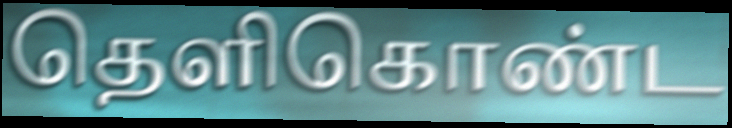
தெளிகொண்ட